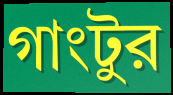
গাংটুর